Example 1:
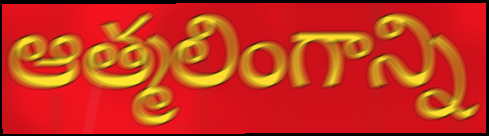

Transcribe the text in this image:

ఆత్మలింగాన్ని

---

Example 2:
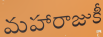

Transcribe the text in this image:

మహారాజుకీ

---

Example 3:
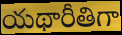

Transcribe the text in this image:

యథారీతిగా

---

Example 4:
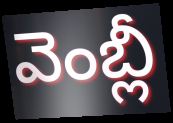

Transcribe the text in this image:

వెంబ్లీ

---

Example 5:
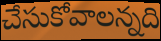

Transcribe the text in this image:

చేసుకోవాలన్నది